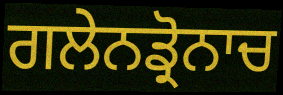
ਗਲੇਨਡ੍ਰੋਨਾਚ